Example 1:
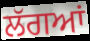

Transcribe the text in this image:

ਲੱਗਆਂ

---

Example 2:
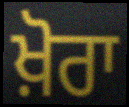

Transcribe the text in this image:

ਖ਼ੋਰਾ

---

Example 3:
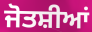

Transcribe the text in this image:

ਜੋਤਸ਼ੀਆਂ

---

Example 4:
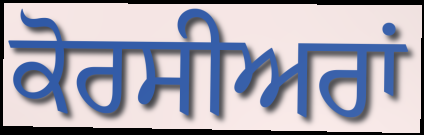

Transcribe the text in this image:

ਕੋਰਸੀਅਰਾਂ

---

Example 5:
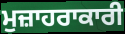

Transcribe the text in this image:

ਮੁਜ਼ਾਹਰਾਕਾਰੀ